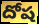
దోష